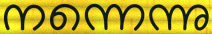
നന്നെന്നു